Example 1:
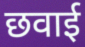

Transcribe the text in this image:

छवाई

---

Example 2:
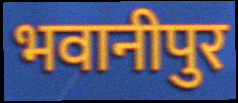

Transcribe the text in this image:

भवानीपुर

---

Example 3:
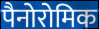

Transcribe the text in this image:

पैनोरोमिक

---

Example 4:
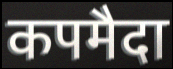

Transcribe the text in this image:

कपमैदा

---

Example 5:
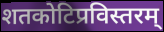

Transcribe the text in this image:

शतकोटिप्रविस्तरम्